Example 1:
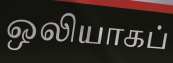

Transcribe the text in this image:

ஒலியாகப்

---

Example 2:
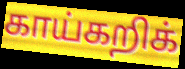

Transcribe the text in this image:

காய்கறிக்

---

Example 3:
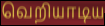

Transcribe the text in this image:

வெறியாடிய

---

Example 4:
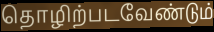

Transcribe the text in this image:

தொழிற்படவேண்டும்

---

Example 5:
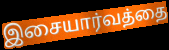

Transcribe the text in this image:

இசையார்வத்தை